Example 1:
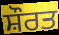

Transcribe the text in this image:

ਸ਼ੌਰਤ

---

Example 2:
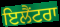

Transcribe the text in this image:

ਇਲੈਂਟਰਾ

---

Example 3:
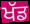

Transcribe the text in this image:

ਖੱਡ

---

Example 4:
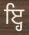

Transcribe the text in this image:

ਇ੍ਹ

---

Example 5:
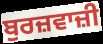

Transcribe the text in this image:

ਬੁਰਜ਼ਵਾਜ਼ੀ